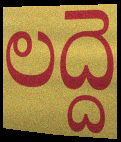
లద్దె